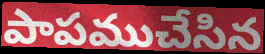
పాపముచేసిన